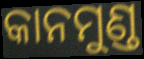
କାନମୁଣ୍ଡ